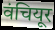
वंचियूर